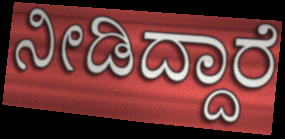
ನೀಡಿದ್ದಾರೆ